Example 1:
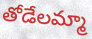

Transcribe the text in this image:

తోడేలమ్మా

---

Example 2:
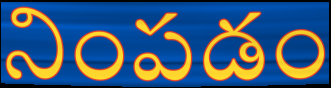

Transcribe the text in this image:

నింపడం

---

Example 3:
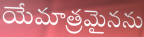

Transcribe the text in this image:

యేమాత్రమైనను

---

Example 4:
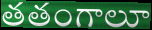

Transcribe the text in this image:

తతంగాలూ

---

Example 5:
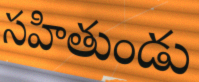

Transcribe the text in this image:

సహితుండు